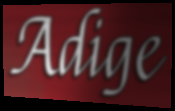
Adige